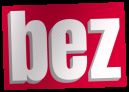
bez